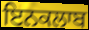
ਇਨਕਲਾਬ